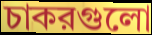
চাকরগুলো